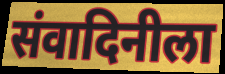
संवादिनीला